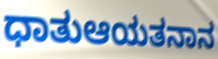
ಧಾತುಆಯತನಾನ